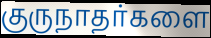
குருநாதர்களை